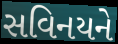
સવિનયને